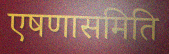
एषणासमिति